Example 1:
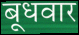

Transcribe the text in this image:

बूधवार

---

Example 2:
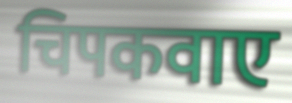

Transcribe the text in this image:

चिपकवाए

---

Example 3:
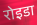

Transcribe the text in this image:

रोइडा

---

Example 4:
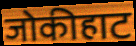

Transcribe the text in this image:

जोकीहाट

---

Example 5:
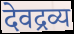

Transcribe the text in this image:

देवद्रव्य